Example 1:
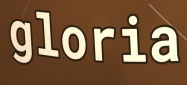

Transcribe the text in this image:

gloria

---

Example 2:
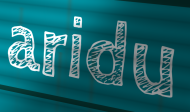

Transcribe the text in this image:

aridu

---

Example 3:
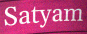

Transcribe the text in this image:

Satyam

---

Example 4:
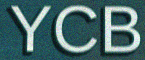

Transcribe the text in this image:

YCB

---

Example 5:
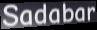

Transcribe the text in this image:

Sadabar